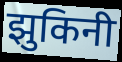
झुकिनी